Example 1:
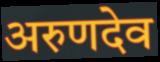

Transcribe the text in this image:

अरुणदेव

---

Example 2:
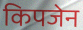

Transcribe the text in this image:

किपजेन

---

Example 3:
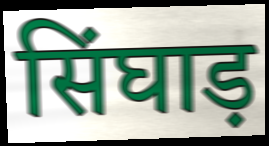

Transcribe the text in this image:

सिंघाड़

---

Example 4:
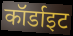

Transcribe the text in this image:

कॉर्डाइट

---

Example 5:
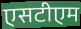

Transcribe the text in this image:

एसटीएम